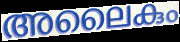
അലൈകും